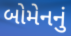
બોમેનનું